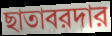
ছাতাবরদার